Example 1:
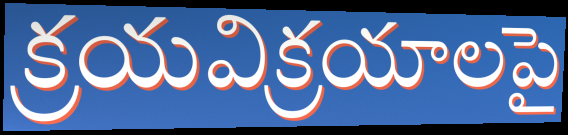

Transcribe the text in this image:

క్రయవిక్రయాలపై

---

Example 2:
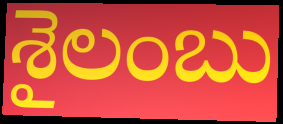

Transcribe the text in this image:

శైలంబు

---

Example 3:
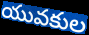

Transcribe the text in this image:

యువకుల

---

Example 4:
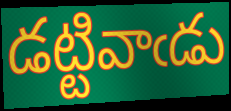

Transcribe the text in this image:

డట్టివాఁడు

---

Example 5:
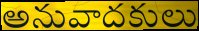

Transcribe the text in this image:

అనువాదకులు